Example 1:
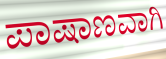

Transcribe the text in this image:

ಪಾಷಾಣವಾಗಿ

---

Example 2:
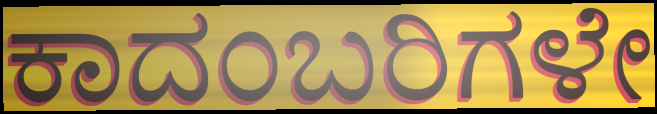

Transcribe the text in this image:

ಕಾದಂಬರಿಗಳೇ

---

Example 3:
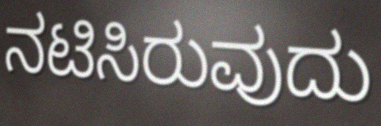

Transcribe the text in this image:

ನಟಿಸಿರುವುದು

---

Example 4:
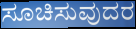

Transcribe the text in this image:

ಸೂಚಿಸುವುದರ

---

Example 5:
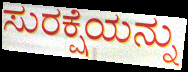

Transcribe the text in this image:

ಸುರಕ್ಷೆಯನ್ನು